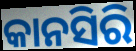
କାନସିରି